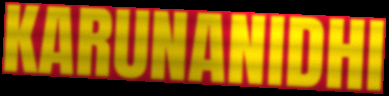
KARUNANIDHI